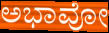
ಅಭಾವೋ